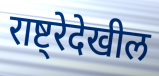
राष्ट्रेदेखील